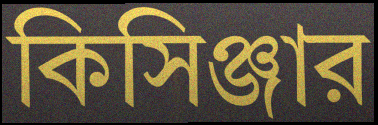
কিসিঞ্জার